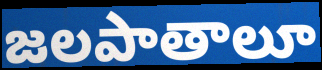
జలపాతాలూ